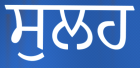
ਸੁਲਹ